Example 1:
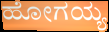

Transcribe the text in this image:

ಹೋಗಯ್ಯ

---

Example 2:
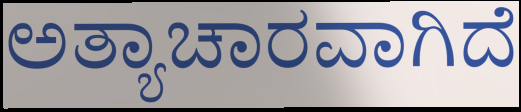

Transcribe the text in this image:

ಅತ್ಯಾಚಾರವಾಗಿದೆ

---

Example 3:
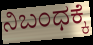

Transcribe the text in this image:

ನಿಬಂಧಕ್ಕೆ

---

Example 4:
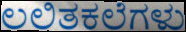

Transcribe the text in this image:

ಲಲಿತಕಲೆಗಳು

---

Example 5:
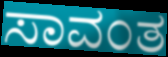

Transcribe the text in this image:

ಸಾವಂತ